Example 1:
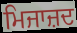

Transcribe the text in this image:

ਮਿਜਾਜ਼ਦ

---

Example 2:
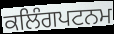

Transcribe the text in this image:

ਕਲਿੰਗਪਟਨਮ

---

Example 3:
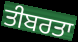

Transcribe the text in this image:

ਤੀਬਰਤਾ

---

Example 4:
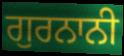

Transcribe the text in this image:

ਗੁਰਨਾਨੀ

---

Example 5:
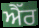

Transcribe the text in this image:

ਐੱਰ